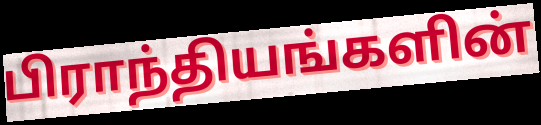
பிராந்தியங்களின்